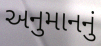
અનુમાનનું